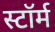
स्टॉर्म